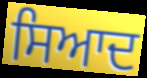
ਸਿਆਦ